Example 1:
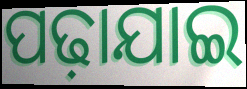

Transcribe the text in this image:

ପଢ଼ାଯାଇ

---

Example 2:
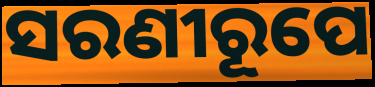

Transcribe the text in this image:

ସରଣୀରୂପେ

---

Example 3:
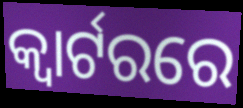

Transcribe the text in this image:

କ୍ବାର୍ଟରରେ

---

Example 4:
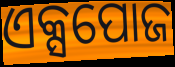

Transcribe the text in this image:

ଏକ୍ସପୋଜ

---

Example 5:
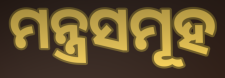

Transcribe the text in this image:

ମନ୍ତ୍ରସମୂହ